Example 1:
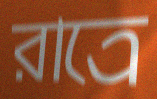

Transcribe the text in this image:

রাত্রে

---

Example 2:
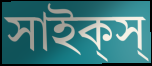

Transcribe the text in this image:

সাইক্‌স্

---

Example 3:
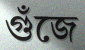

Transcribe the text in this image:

গুঁজে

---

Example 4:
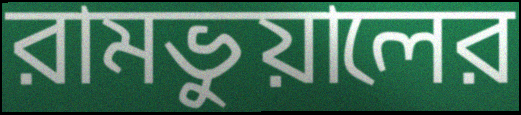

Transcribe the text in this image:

রামভুয়ালের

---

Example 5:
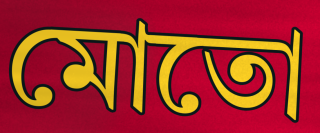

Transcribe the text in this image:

মোতো